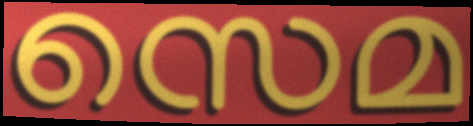
സെമ